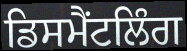
ਡਿਸਮੈਂਟਲਿੰਗ